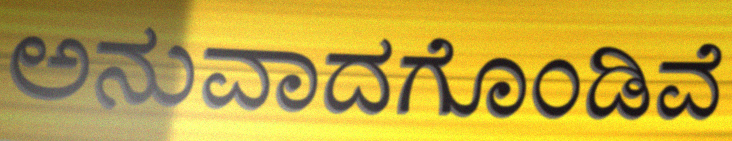
ಅನುವಾದಗೊಂಡಿವೆ